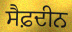
ਸੈਫ਼ਦੀਨ